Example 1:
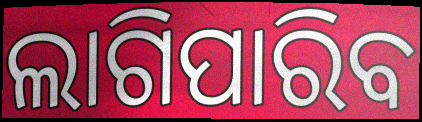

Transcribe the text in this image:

ଲାଗିପାରିବ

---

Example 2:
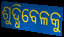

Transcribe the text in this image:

ଶୁଦ୍ଧିବେଳକୁ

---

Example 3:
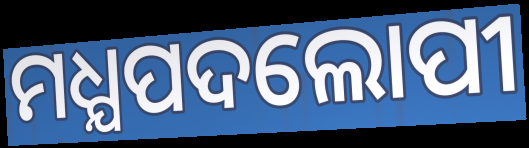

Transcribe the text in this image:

ମଧ୍ଯପଦଲୋପୀ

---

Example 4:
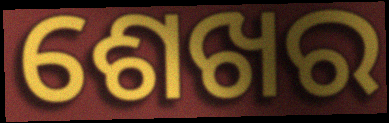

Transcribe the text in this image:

ଶେଖର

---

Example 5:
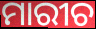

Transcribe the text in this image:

ମାରୀଚ